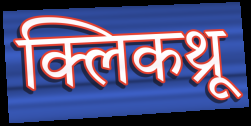
क्लिकथ्रू